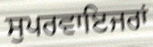
ਸੁਪਰਵਾਇਜਰਾਂ